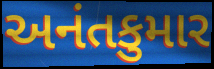
અનંતકુમાર